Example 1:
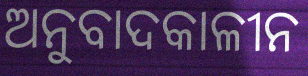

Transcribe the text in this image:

ଅନୁବାଦକାଳୀନ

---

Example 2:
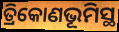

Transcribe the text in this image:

ତ୍ରିକୋଣଭୂମିସ୍ଥ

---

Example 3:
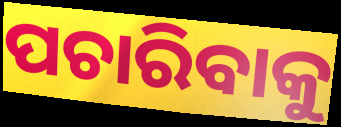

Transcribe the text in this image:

ପଚାରିବାକୁ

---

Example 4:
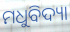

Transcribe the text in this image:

ମଧୁବିଦ୍ୟା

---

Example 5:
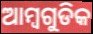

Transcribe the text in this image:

ଆମ୍ବଗୁଡିକ